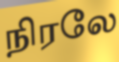
நிரலே